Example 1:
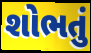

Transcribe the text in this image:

શોભતું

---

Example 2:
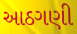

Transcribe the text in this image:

આઠગણી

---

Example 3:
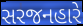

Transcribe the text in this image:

સરજનહારે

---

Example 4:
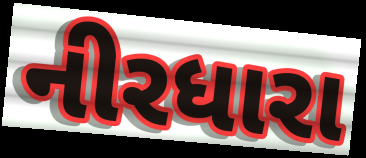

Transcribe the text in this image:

નીરધારા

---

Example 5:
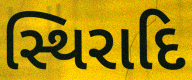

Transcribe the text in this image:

સ્થિરાદિ